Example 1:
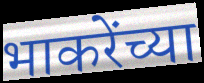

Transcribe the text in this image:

भाकरेंच्या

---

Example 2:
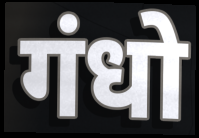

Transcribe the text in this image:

गंधो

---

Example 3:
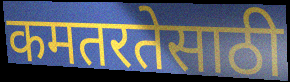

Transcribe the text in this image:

कमतरतेसाठी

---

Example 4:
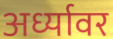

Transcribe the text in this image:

अर्ध्यावर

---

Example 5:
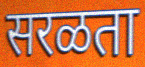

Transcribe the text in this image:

सरळता